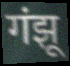
गंझू